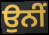
ਉਨੀਂ